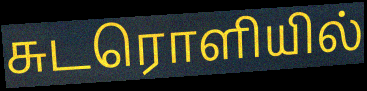
சுடரொளியில்